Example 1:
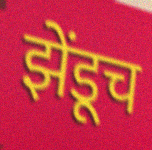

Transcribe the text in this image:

झेंडूच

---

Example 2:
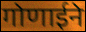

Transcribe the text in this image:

गोणाईने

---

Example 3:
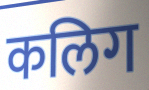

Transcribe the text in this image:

कलिग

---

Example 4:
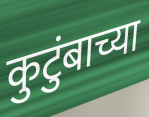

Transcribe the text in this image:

कुटुंबाच्या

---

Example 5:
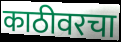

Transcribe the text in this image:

काठीवरचा